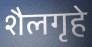
शैलगृहे